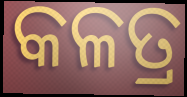
କଳତ୍ର